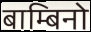
बाम्बिनो